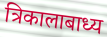
त्रिकालाबाध्य